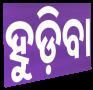
ହୁଡ଼ିବା